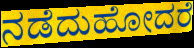
ನಡೆದುಹೋದರೆ